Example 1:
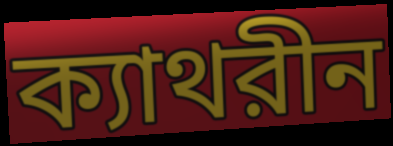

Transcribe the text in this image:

ক্যাথরীন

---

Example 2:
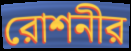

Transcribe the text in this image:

রোশনীর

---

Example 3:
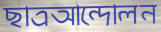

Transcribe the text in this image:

ছাত্রআন্দোলন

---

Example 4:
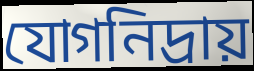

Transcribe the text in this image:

যোগনিদ্রায়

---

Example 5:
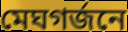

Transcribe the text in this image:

মেঘগর্জনে